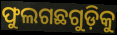
ଫୁଲଗଛଗୁଡ଼ିକୁ